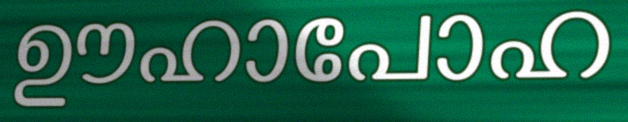
ഊഹാപോഹ